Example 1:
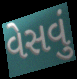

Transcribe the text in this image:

વેસવું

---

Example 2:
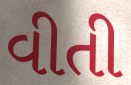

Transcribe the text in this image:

વીતી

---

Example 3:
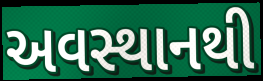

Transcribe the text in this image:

અવસ્થાનથી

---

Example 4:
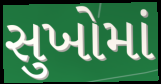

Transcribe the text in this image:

સુખોમાં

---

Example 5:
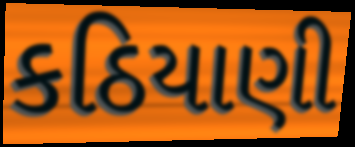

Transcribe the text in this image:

કઠિયાણી